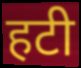
हटी